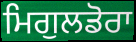
ਮਿਗੁਲਡੋਰਾ